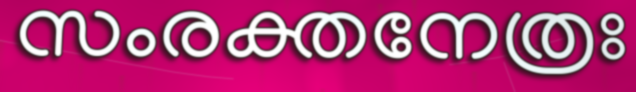
സംരക്തനേത്രഃ